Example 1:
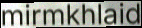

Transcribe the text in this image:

mirmkhlaid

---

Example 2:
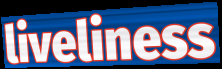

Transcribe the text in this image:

liveliness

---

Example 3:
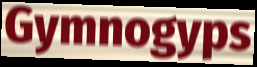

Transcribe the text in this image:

Gymnogyps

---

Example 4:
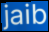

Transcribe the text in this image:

jaib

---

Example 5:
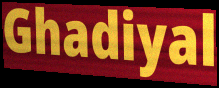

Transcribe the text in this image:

Ghadiyal